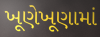
ખૂણેખૂણામાં